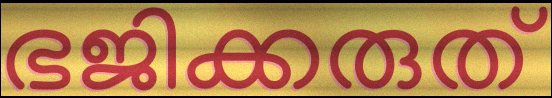
ഭജിക്കരുത്